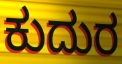
ಕುದುರ